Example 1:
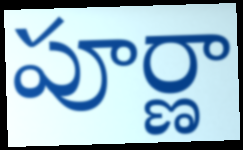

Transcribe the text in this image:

పూర్ణా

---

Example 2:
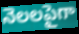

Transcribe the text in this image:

నెలలపైగా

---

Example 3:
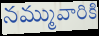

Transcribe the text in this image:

నమ్మువారికి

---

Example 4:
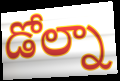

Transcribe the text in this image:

డోల్నా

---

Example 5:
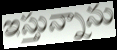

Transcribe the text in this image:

ఇస్తున్నాను